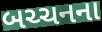
બચ્ચનના